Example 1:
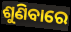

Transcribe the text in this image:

ଶୁଣିବାରେ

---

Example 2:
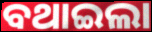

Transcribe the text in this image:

ବଥାଇଲା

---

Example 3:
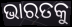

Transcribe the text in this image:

ଭାରତକୁ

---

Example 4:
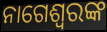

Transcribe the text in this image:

ନାଗେଶ୍ୱରଙ୍କ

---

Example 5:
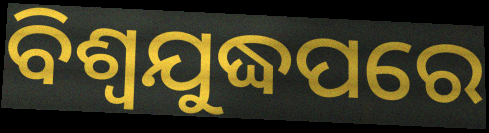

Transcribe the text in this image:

ବିଶ୍ୱଯୁଦ୍ଧପରେ